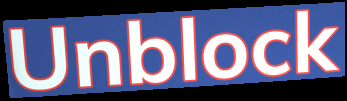
Unblock